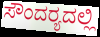
ಸೌಂದರ‍್ಯದಲ್ಲಿ